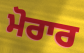
ਮੋਰਾਰ